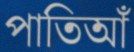
পাতিআঁ